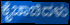
ಕೈಚಾಚಿದಳು